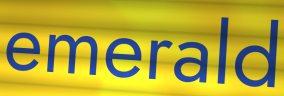
emerald